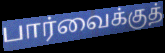
பார்வைக்குத்